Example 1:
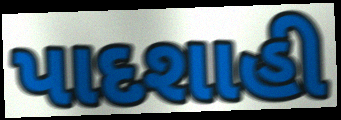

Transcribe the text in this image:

પાદશાહી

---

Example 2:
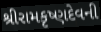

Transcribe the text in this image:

શ્રીરામકૃષ્ણદેવની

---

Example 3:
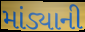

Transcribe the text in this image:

માંડ્યાની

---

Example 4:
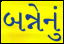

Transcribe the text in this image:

બન્નેનું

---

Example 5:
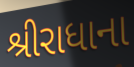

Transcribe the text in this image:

શ્રીરાધાના